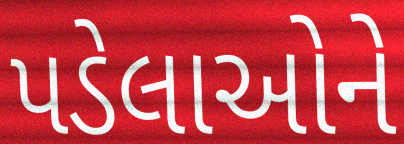
પડેલાઓને